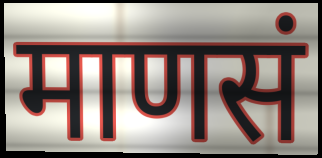
माणसं